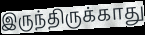
இருந்திருக்காது